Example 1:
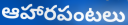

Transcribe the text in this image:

ఆహారపంటలు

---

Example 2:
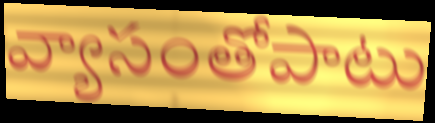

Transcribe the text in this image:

వ్యాసంతోపాటు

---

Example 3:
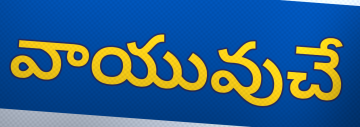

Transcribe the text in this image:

వాయువుచే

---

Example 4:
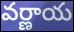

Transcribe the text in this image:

వర్ణాయ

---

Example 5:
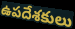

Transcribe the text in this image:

ఉపదేశకులు